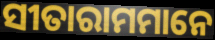
ସୀତାରାମମାନେ